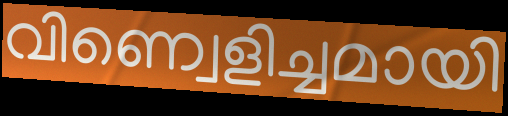
വിണ്വെളിച്ചമായി